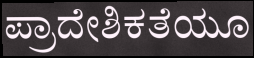
ಪ್ರಾದೇಶಿಕತೆಯೂ